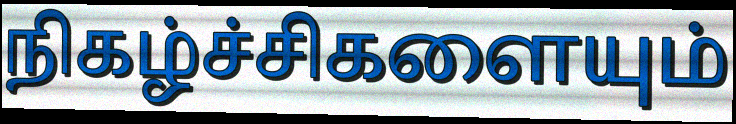
நிகழ்ச்சிகளையும்